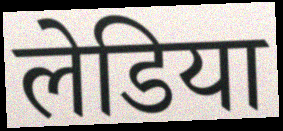
लेडिया